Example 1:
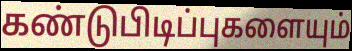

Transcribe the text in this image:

கண்டுபிடிப்புகளையும்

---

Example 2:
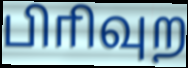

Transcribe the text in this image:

பிரிவுற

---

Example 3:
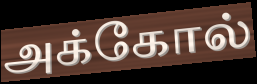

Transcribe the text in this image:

அக்கோல்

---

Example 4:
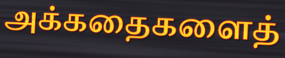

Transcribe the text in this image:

அக்கதைகளைத்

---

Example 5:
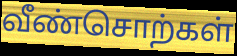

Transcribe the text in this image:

வீண்சொற்கள்